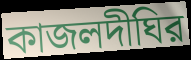
কাজলদীঘির